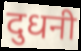
दुधनी